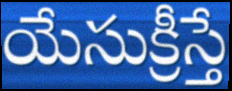
యేసుక్రీస్తే